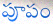
పూపం